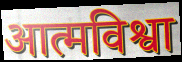
आत्मविश्वा